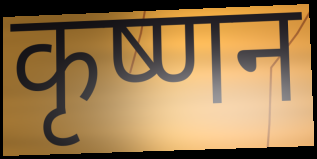
कृष्णन